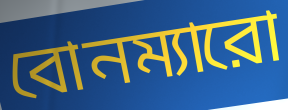
বোনম্যারো